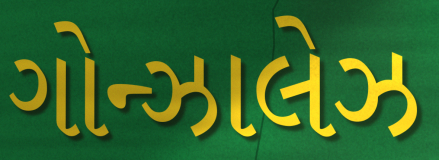
ગોન્ઝાલેઝ